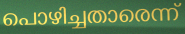
പൊഴിച്ചതാരെന്ന്